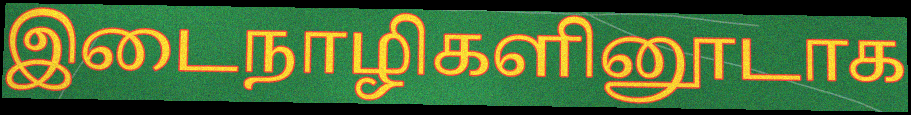
இடைநாழிகளினூடாக